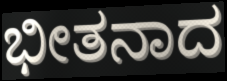
ಭೀತನಾದ